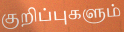
குறிப்புகளும்